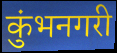
कुंभनगरी